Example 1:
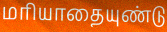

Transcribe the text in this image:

மரியாதையுண்டு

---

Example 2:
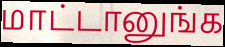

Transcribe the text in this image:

மாட்டானுங்க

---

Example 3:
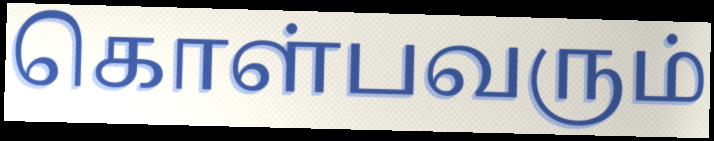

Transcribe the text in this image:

கொள்பவரும்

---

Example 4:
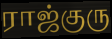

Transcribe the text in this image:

ராஜ்குரு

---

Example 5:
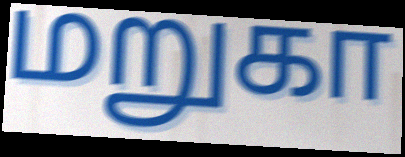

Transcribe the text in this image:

மறுகா